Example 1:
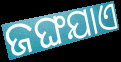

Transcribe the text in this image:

ଜଙ୍ଘଯାଏ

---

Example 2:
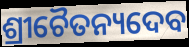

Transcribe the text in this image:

ଶ୍ରୀଚୈତନ୍ୟଦେବ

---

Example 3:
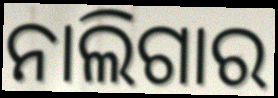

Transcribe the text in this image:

ନାଲିଗାର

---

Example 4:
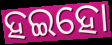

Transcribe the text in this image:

ହଇହୋ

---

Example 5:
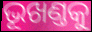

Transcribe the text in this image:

ଭୂଖଣ୍ତକୁ